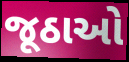
જૂઠાઓ